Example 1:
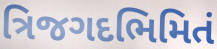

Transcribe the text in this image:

ત્રિજગદભિમિતં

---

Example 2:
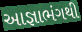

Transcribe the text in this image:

આજ્ઞાભંગથી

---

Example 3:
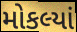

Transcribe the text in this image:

મોકલ્યાં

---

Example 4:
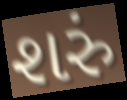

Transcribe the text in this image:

શરું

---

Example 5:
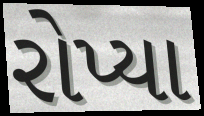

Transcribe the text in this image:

રોપ્યા